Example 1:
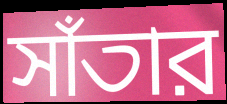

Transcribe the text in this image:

সাঁতার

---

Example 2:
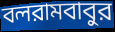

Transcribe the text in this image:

বলরামবাবুর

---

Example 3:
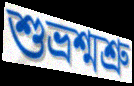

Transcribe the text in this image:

শুভ্রশ্মশ্রু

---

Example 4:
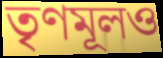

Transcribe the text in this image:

তৃণমূলও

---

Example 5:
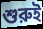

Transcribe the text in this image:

শুরুই